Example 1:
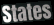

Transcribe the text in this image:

States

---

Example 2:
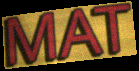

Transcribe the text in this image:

MAT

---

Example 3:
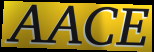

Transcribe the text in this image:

AACE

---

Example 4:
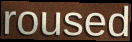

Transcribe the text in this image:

roused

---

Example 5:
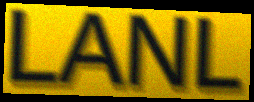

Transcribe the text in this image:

LANL